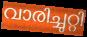
വാരിച്ചുറ്റി